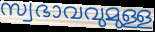
സ്വഭാവവുമുള്ള